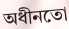
অধীনতো